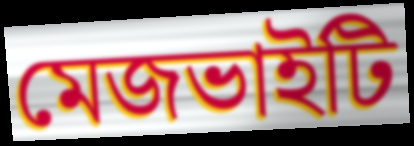
মেজভাইটি